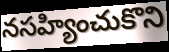
నసహ్యించుకొని